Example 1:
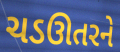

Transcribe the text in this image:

ચડઊતરને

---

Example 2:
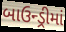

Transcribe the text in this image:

બાઉન્ડ્રીમાં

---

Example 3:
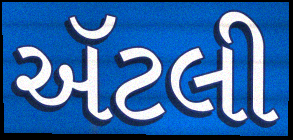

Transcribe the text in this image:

ઍટલી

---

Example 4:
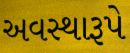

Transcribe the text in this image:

અવસ્થારૂપે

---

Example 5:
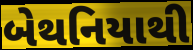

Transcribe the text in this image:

બેથનિયાથી